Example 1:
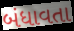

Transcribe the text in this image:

બંધાવતા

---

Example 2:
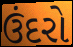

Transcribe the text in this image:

ઉંદરો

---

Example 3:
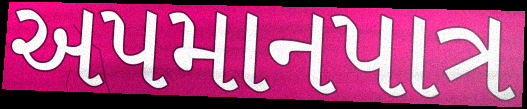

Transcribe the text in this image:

અપમાનપાત્ર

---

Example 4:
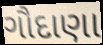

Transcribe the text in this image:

ગૌદાણા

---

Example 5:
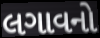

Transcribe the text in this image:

લગાવનો